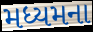
મધ્યમના